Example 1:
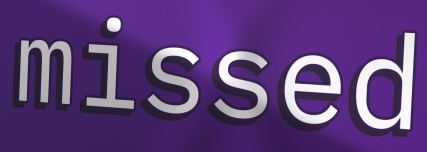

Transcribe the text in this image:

missed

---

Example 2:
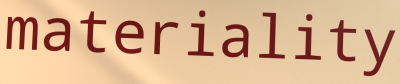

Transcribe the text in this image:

materiality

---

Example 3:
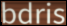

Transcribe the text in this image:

bdris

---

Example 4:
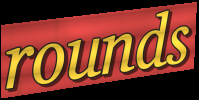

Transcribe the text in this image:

rounds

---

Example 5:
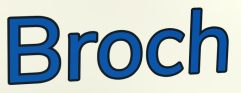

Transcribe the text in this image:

Broch